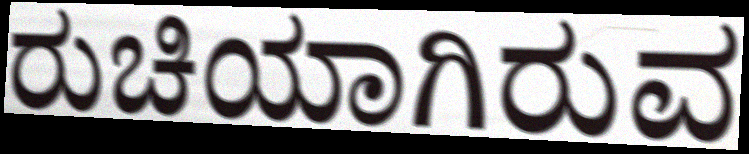
ರುಚಿಯಾಗಿರುವ